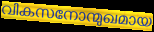
വികസനോന്മുഖമായ